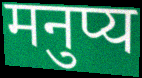
मनुप्य